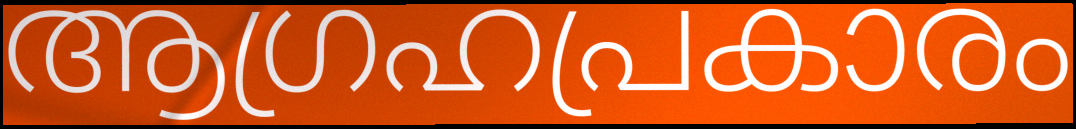
ആഗ്രഹപ്രകാരം